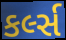
કર્લ્સ